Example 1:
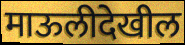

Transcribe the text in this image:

माऊलीदेखील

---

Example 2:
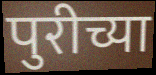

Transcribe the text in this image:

पुरीच्या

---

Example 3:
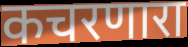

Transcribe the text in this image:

कचरणारा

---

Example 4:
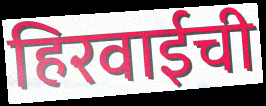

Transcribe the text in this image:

हिरवाईची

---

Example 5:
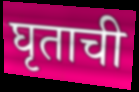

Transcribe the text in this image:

घृताची